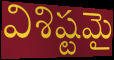
విశిష్టమై